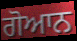
ਗੋਆਨ